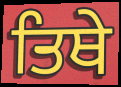
ਤਿਥੇ